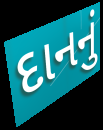
દાનનું